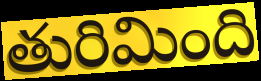
తురిమింది